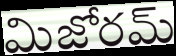
మిజోరమ్